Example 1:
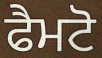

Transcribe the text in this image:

ਫੈਮਟੋ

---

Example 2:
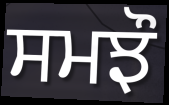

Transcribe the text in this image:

ਸਮਝੌ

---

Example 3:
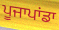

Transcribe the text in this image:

ਪੂਜਾਪਾਂਡਾ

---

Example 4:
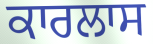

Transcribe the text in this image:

ਕਾਰਲਾਸ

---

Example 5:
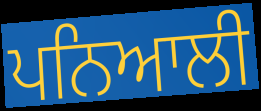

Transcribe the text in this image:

ਪਨਿਆਲੀ